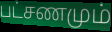
பட்சணமும்